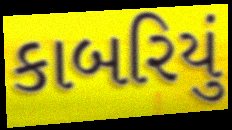
કાબરિયું